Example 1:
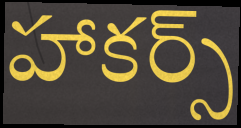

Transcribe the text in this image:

హాకర్స్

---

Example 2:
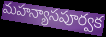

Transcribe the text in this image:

మహన్యాసపూర్వక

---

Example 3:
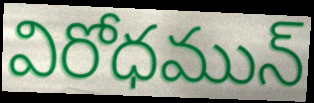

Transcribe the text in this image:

విరోధమున్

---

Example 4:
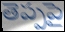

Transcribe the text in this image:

తెప్పపై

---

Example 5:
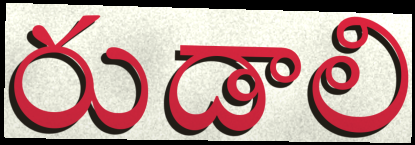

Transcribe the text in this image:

రుడాలి